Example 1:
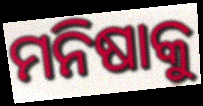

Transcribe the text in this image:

ମନିଷାକୁ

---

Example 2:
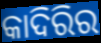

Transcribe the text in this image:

କାଦିରିର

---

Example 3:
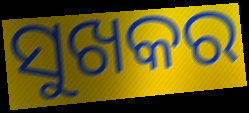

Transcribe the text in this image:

ସୁଖକର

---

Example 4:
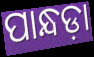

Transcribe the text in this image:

ପାନ୍ଧଡ଼ା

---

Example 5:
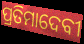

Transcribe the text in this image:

ପ୍ରତିମାଦେବୀ